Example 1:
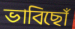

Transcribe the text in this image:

ভাবিছোঁ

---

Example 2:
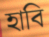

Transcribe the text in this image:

হাবি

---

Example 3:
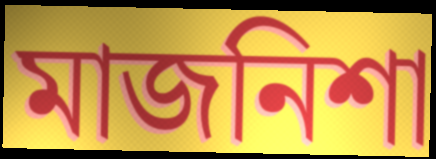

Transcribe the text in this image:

মাজনিশা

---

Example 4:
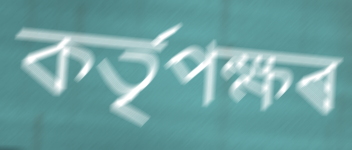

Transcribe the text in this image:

কৰ্তৃপক্ষৰ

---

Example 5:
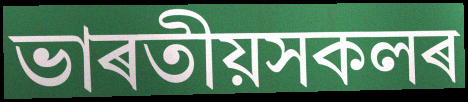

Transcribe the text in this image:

ভাৰতীয়সকলৰ